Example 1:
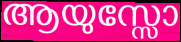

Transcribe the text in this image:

ആയുസ്സോ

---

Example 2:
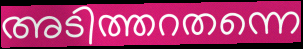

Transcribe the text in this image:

അടിത്തറതന്നെ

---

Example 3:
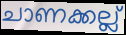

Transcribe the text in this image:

ചാണക്കല്ല്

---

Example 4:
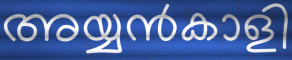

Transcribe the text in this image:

അയ്യൻകാളി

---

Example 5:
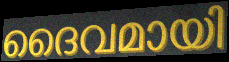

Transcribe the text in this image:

ദൈവമായി